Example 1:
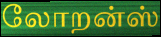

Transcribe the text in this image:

லோறன்ஸ்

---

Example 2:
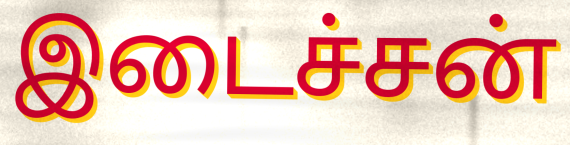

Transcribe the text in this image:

இடைச்சன்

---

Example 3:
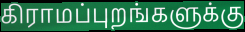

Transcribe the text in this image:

கிராமப்புறங்களுக்கு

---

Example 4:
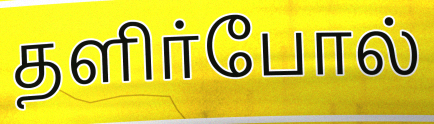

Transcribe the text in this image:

தளிர்போல்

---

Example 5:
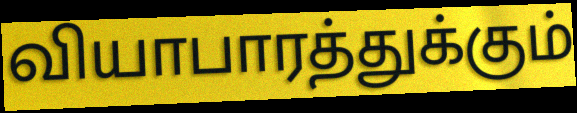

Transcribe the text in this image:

வியாபாரத்துக்கும்